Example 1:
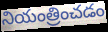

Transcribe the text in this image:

నియంత్రించడం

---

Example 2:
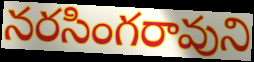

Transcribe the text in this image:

నరసింగరావుని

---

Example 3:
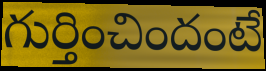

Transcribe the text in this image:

గుర్తించిందంటే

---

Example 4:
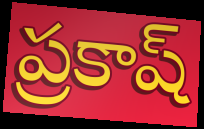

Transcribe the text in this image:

ప్రకాష్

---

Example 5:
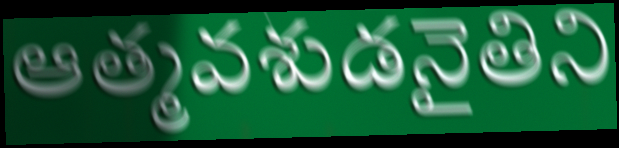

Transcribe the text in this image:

ఆత్మవశుడనైతిని